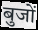
बुजों